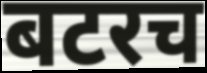
बटरच